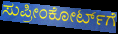
ಸುಪ್ರೀಂಕೋರ್ಟ್‌ಗೆ